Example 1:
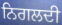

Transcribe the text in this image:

ਨਿਗਲਦੀ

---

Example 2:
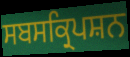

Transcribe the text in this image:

ਸਬਸਕ੍ਰਿਪਸ਼ਨ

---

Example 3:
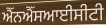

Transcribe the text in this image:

ਐੱਨਐੱਸਆਈਸੀਟੀ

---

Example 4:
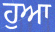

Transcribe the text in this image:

ਹੁਆ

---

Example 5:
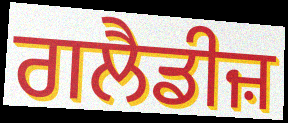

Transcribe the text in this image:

ਗਲੈਡੀਜ਼